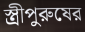
স্ত্রীপুরুষের